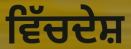
ਵਿੱਚਦੇਸ਼